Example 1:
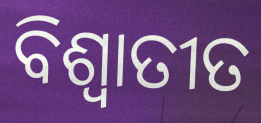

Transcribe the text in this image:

ବିଶ୍ଵାତୀତ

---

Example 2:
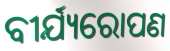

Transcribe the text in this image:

ବୀର୍ଯ୍ୟରୋପଣ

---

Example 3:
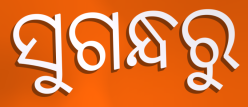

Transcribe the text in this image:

ସୁଗନ୍ଧରୁ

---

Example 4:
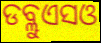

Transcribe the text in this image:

ଡବ୍ଲୁଏସଓ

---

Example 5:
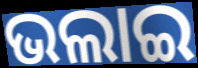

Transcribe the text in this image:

ଭଲାଇ